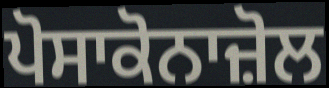
ਪੋਸਾਕੋਨਾਜ਼ੋਲ